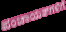
ಪಂಚಾಯತ್‌ಗಳಿಗೆ